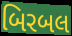
બિરબલ